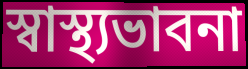
স্বাস্থ্যভাবনা